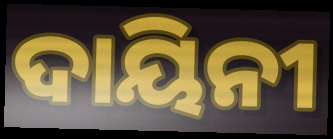
ଦାୟିନୀ